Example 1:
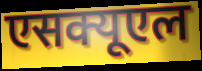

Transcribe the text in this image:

एसक्यूएल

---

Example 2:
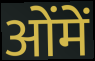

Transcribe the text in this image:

ओंमें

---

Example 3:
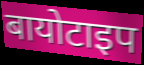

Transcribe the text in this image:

बायोटाइप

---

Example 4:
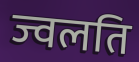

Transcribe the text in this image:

ज्वलति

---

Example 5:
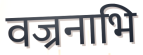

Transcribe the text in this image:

वज्रनाभि